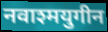
नवाश्मयुगीन